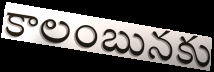
కాలంబునకు